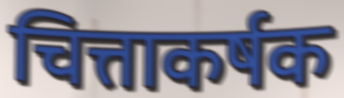
चित्ताकर्षक